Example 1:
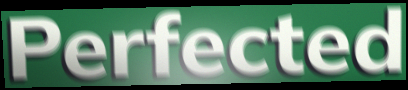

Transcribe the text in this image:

Perfected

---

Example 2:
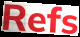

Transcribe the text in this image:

Refs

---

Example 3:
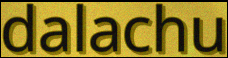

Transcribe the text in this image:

dalachu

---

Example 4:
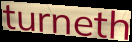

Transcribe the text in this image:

turneth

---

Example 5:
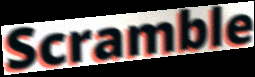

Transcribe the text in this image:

Scramble